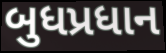
બુધપ્રધાન